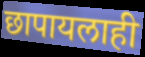
छापायलाही